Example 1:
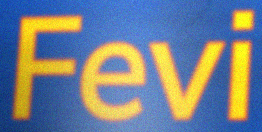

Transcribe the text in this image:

Fevi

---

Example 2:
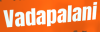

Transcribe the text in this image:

Vadapalani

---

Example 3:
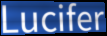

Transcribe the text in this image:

Lucifer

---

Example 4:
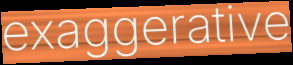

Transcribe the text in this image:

exaggerative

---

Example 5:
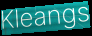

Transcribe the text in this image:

Kleangs